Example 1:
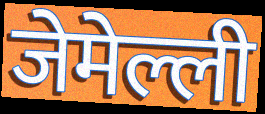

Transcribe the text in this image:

जेमेल्ली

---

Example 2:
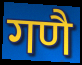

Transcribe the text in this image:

गणै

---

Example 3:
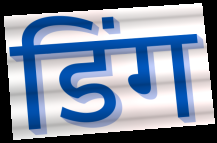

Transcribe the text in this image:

डिंग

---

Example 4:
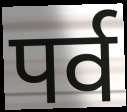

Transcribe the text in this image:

पर्व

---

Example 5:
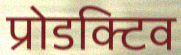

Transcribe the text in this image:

प्रोडक्टिव